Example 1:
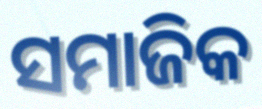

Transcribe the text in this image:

ସମାଜିକ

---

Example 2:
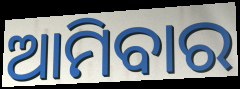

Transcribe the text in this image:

ଆମିବାର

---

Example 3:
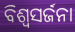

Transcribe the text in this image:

ବିଶ୍ଵସର୍ଜନା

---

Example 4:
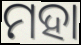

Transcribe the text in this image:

ମହା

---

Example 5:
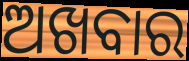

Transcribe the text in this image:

ଅଖବାର